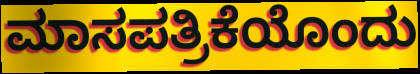
ಮಾಸಪತ್ರಿಕೆಯೊಂದು